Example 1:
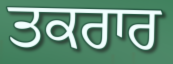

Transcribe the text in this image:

ਤਕਰਾਰ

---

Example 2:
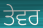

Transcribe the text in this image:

ਤੇਵਰ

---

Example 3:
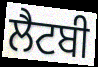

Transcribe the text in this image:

ਲੈਟਬੀ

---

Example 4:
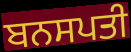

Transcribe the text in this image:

ਬਨਸਪਤੀ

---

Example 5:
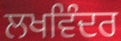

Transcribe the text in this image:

ਲਖਵਿੰਦਰ